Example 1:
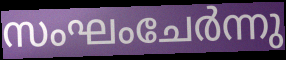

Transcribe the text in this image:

സംഘംചേർന്നു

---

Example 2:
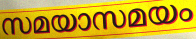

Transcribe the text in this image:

സമയാസമയം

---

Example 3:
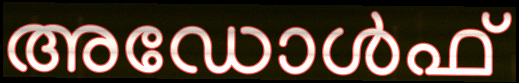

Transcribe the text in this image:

അഡോൾഫ്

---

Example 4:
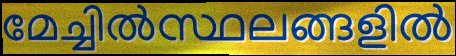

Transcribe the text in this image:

മേച്ചിൽസ്ഥലങ്ങളിൽ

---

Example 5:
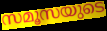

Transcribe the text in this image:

സമൂസയുടെ